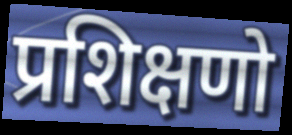
प्रशिक्षणो